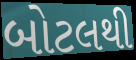
બોટલથી